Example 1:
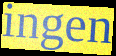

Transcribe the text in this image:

ingen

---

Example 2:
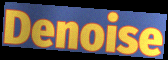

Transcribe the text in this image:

Denoise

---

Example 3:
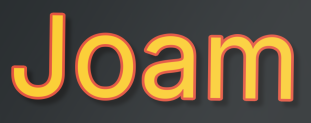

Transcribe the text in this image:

Joam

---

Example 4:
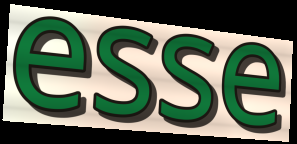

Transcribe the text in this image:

esse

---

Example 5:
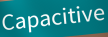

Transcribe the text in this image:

Capacitive